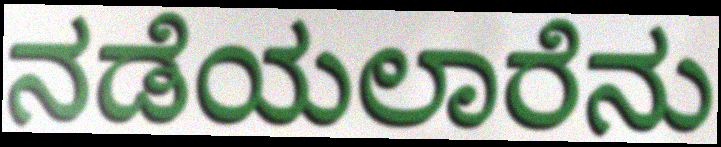
ನಡೆಯಲಾರೆನು